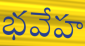
భవేహ